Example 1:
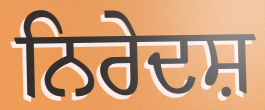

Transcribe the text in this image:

ਨਿਰੇਦਸ਼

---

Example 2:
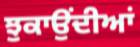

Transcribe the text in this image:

ਝੁਕਾਉਂਦੀਆਂ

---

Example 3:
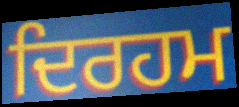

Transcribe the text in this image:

ਦਿਰਹਮ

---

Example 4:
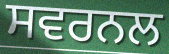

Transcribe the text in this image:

ਸਵਰਨਲ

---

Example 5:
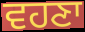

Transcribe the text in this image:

ਵਹਣਾ